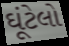
ઘૂંટેલો